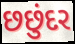
છછુંદર